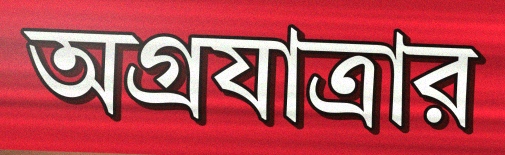
অগ্রযাত্রার